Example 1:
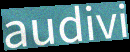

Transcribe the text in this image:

audivi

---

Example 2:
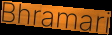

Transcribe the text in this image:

Bhramari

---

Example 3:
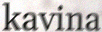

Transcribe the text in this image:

kavina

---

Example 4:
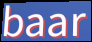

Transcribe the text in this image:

baar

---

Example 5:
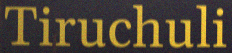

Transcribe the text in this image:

Tiruchuli